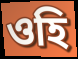
ওহি